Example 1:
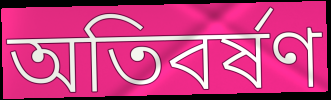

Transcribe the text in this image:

অতিবর্ষণ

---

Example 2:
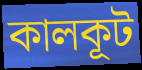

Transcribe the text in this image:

কালকূট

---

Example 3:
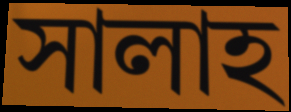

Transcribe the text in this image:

সালাহ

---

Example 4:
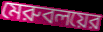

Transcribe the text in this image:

মেরুবলয়ের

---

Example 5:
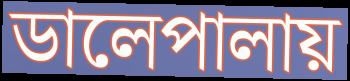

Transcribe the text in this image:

ডালেপালায়